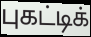
புகட்டிக்